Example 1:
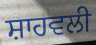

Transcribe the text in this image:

ਸ਼ਾਹਵਲੀ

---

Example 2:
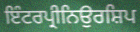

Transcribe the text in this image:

ਇੰਟਰਪ੍ਰੀਨਿਉਰਸ਼ਿਪ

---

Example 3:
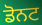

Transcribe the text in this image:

ਡੋਨਟ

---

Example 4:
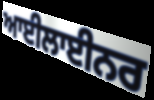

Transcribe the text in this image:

ਆਈਲਾਈਨਰ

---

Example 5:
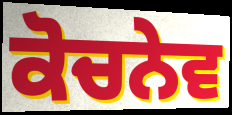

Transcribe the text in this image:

ਕੋਚਨੇਵ